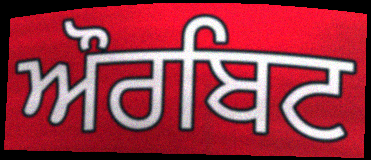
ਔਰਬਿਟ